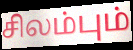
சிலம்பும்